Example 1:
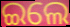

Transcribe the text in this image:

ଇଲେ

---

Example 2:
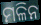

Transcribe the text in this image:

ମଳିନ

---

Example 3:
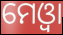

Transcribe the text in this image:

ମେଓ୍ୱା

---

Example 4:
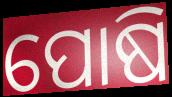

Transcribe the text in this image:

ପୋଷି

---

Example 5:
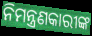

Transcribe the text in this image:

ନିମନ୍ତ୍ରଣକାରୀଙ୍କ